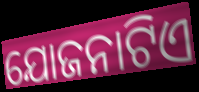
ଯୋଜନାଟିଏ